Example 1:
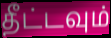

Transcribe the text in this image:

தீட்டவும்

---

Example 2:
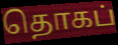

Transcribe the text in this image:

தொகப்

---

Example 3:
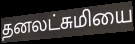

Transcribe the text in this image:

தனலட்சுமியை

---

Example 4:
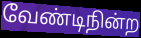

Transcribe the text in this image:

வேண்டிநின்ற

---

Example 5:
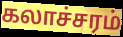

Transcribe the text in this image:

கலாச்சரம்